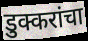
डुक्करांचा